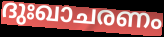
ദുഃഖാചരണം